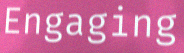
Engaging